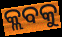
କ୍ଲବକୁ